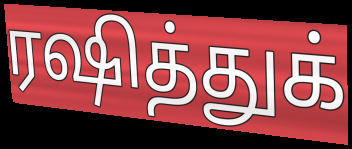
ரஷித்துக்